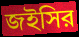
জইসির